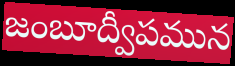
జంబూద్వీపమున